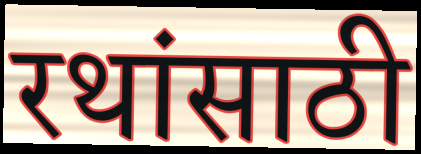
रथांसाठी